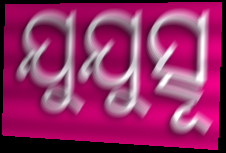
ଯୁଯୁତ୍ସୂ